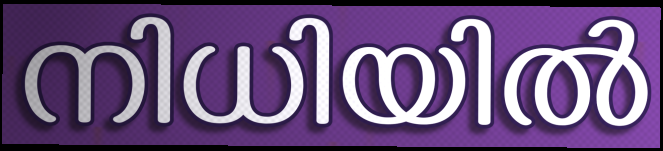
നിധിയിൽ